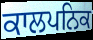
ਕਾਲਪਨਿਕ